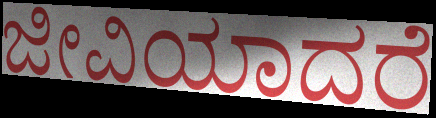
ಜೀವಿಯಾದರೆ